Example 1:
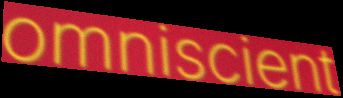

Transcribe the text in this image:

omniscient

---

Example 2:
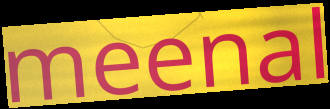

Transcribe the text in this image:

meenal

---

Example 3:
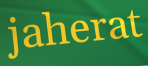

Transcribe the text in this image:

jaherat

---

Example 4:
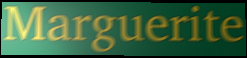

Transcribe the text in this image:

Marguerite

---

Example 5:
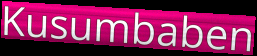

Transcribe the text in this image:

Kusumbaben